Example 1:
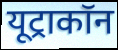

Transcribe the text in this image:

यूट्राकॉन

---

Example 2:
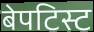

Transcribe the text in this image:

बेपटिस्ट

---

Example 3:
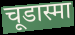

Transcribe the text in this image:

चूडास्मा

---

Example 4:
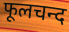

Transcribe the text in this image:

फूलचन्द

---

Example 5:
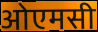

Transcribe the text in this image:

ओएमसी